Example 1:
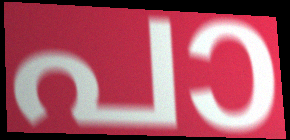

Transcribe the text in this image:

പാ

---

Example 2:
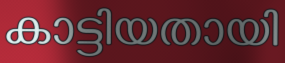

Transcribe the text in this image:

കാട്ടിയതായി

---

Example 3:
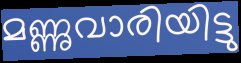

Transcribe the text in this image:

മണ്ണുവാരിയിട്ടു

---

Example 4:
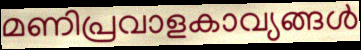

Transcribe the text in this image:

മണിപ്രവാളകാവ്യങ്ങൾ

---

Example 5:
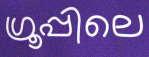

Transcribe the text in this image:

ഗ്രൂപ്പിലെ